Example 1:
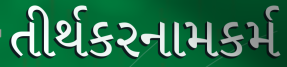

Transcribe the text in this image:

તીર્થકરનામકર્મ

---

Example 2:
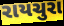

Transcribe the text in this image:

રાયચુરા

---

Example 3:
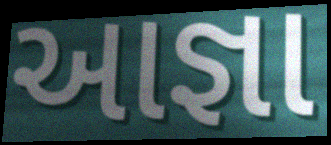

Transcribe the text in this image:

આજ્ઞા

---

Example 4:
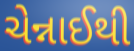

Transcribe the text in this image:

ચેન્નાઈથી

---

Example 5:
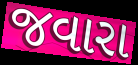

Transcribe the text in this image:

જવારા